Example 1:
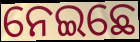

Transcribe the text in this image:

ନେଇଛେ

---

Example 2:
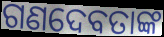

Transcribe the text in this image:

ଗଣଦେବତାଙ୍କ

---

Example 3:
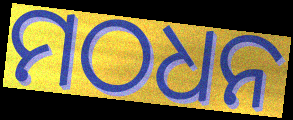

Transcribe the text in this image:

ମଠଧନ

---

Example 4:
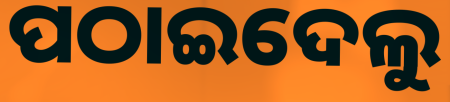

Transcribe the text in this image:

ପଠାଇଦେଲୁ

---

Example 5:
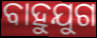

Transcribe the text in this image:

ବାହୁଯୁଗ